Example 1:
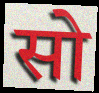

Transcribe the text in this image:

सो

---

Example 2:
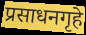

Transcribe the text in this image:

प्रसाधनगृहे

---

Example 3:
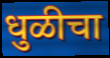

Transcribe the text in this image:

धुळीचा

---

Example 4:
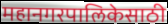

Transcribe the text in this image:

महानगरपालिकेसाठी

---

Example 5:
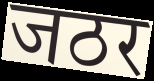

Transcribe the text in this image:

जठर